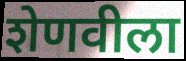
शेणवीला